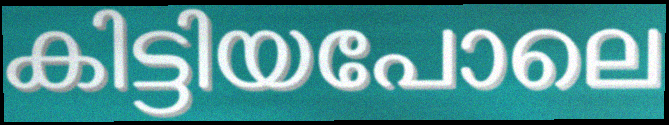
കിട്ടിയപോലെ